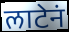
लाटेनं